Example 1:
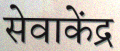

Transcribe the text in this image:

सेवाकेंद्र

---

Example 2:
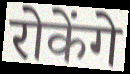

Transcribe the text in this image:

रोकेंगे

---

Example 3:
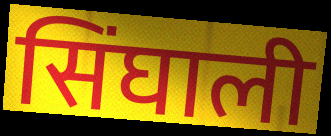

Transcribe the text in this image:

सिंघाली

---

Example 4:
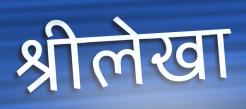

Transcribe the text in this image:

श्रीलेखा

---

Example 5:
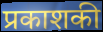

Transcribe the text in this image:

प्रकाशकी